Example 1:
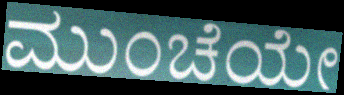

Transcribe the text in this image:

ಮುಂಚೆಯೇ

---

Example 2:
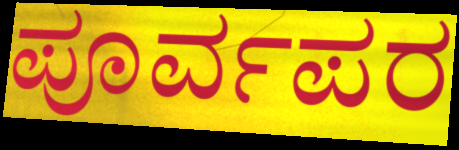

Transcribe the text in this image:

ಪೂರ್ವಪರ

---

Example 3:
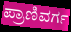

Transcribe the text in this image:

ಪ್ರಾಣಿವರ್ಗ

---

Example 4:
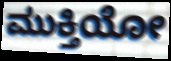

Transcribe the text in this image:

ಮುಕ್ತಿಯೋ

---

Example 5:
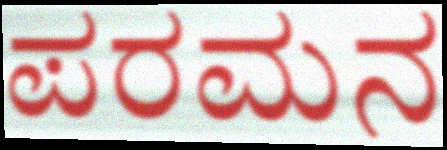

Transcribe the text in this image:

ಪರಮನ